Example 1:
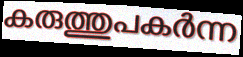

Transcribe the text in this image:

കരുത്തുപകർന്ന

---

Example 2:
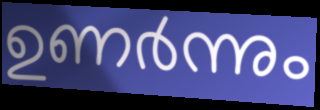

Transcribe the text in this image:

ഉണർന്നും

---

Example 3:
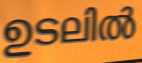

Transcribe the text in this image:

ഉടലിൽ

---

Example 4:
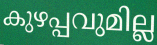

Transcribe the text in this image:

കുഴപ്പവുമില്ല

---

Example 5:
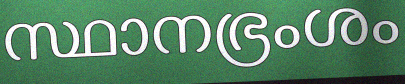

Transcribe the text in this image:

സ്ഥാനഭ്രംശം